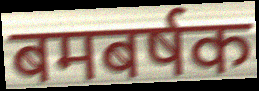
बमबर्षक